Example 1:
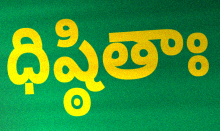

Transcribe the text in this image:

ధిష్ఠితాః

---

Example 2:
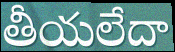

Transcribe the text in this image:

తీయలేదా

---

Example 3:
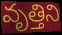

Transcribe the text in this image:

వృత్తిని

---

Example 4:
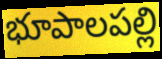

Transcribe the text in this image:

భూపాలపల్లి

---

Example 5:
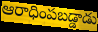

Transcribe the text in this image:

ఆరాధింపబడ్డాడు